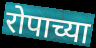
रोपाच्या